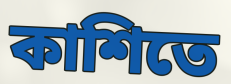
কাশিতে